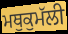
ਮਥੁਕੁਮੱਲੀ